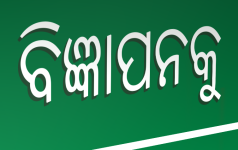
ବିଜ୍ଞାପନକୁ